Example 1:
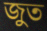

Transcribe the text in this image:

জুত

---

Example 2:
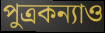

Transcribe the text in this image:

পুত্রকন্যাও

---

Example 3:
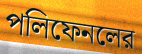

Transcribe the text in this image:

পলিফেনলের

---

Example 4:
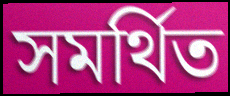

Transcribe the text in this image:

সমর্থিত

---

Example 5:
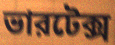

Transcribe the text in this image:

ভারটেক্স